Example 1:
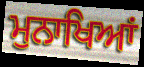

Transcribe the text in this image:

ਮੁਨਾਖਿਆਂ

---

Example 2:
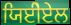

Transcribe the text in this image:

ਯਿਈੇਏਲ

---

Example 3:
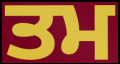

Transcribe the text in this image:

ਤਮ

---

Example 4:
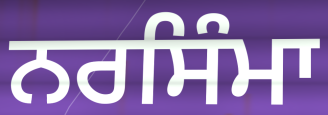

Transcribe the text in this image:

ਨਰਸਿੰਮਾ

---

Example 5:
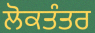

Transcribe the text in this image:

ਲੋਕਤੰਤਰ